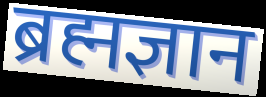
ब्रह्मज्ञान